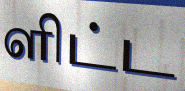
ளிட்ட